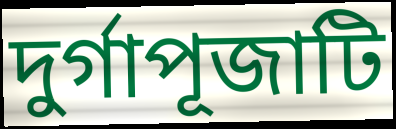
দুর্গাপূজাটি